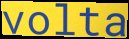
volta